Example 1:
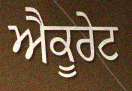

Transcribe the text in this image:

ਐਕੂਰੇਟ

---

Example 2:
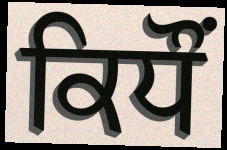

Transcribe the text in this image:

ਕਿਧੌਂ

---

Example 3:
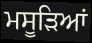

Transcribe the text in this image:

ਮਸੂੜਿਆਂ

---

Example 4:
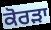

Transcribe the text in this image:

ਕੋਰੜਾ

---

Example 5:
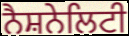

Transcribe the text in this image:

ਨੈਸ਼ਨੇਲਿਟੀ